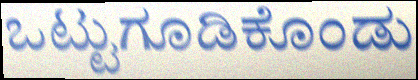
ಒಟ್ಟುಗೂಡಿಕೊಂಡು